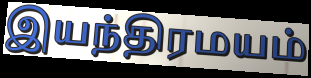
இயந்திரமயம்